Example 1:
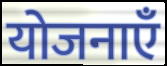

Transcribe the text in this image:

योजनाएँ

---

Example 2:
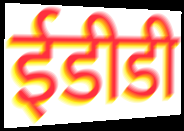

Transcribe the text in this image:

ईडीडी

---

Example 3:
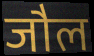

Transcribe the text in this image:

जौल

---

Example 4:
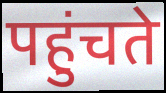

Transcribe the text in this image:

पहुंचते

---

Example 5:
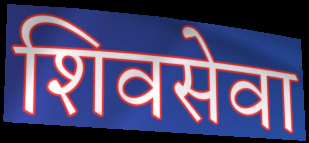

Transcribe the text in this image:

शिवसेवा